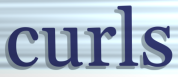
curls